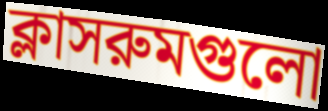
ক্লাসরুমগুলো